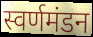
स्वर्णमंडन